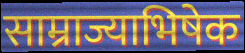
साम्राज्याभिषेक